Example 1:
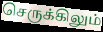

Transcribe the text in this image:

செருக்கிலும்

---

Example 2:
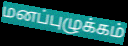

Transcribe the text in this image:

மனப்புழுக்கம்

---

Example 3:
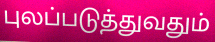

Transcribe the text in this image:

புலப்படுத்துவதும்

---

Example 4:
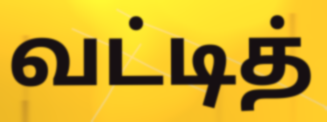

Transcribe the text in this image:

வட்டித்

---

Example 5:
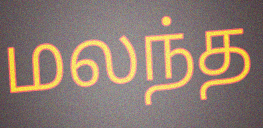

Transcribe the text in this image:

மலந்த